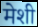
मेशी